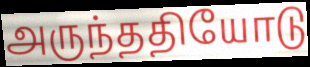
அருந்ததியோடு